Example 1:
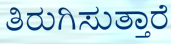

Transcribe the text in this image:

ತಿರುಗಿಸುತ್ತಾರೆ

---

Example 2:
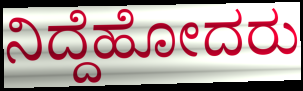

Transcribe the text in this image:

ನಿದ್ದೆಹೋದರು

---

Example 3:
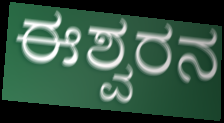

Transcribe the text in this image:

ಈಶ್ವರನ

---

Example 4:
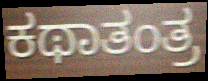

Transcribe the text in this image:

ಕಥಾತಂತ್ರ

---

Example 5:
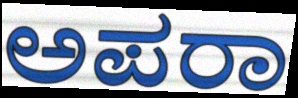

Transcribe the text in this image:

ಅಪರಾ